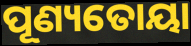
ପୂଣ୍ୟତୋୟା